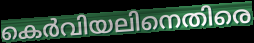
കെർവിയലിനെതിരെ